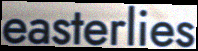
easterlies